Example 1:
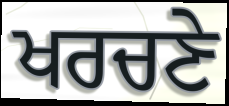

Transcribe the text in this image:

ਖਰਚਣੇ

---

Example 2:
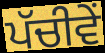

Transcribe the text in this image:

ਪੱਚੀਵੇਂ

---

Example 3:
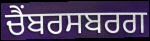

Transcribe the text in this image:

ਚੈਂਬਰਸਬਰਗ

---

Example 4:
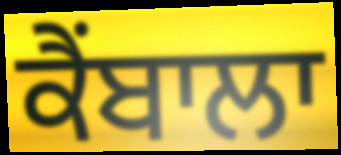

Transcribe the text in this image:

ਕੈਂਬਾਲਾ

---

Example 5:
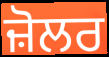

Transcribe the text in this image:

ਜ਼ੋਲਰ